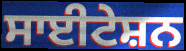
ਸਾਈਟੇਸ਼ਨ